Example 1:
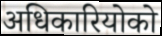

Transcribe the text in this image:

अधिकारियोको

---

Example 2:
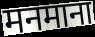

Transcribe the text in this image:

मनमाना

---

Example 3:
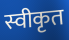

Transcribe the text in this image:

स्‍वीकृत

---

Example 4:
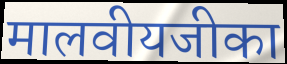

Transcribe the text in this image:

मालवीयजीका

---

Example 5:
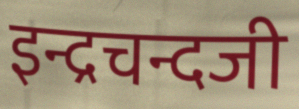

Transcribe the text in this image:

इन्द्रचन्दजी